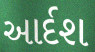
આર્દશ